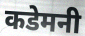
कडेमनी